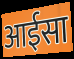
आईसा